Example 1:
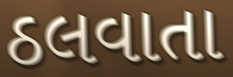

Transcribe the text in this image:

ઠલવાતા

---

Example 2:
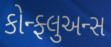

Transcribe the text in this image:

કોન્ફ્લુઅન્સ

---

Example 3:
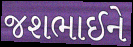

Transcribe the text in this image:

જશભાઈને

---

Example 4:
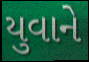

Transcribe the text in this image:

યુવાને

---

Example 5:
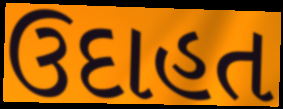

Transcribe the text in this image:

ઉદાહત